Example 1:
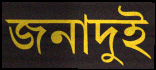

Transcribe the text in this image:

জনাদুই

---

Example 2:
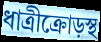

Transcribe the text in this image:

ধাত্রীক্রোড়স্থ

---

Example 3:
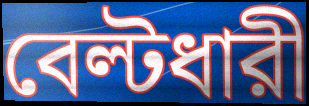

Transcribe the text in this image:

বেল্টধারী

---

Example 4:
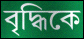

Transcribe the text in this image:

বৃদ্ধিকে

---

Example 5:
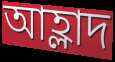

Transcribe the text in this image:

আহ্লাদ